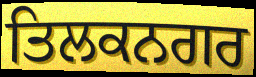
ਤਿਲਕਨਗਰ